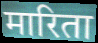
मारिता